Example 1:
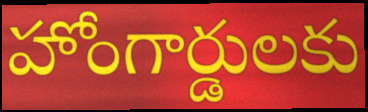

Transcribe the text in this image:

హోంగార్డులకు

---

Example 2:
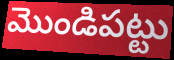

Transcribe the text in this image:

మొండిపట్టు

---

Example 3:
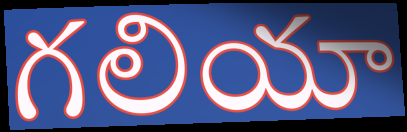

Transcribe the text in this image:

గలియా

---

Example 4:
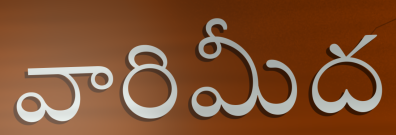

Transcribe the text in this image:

వారిమీద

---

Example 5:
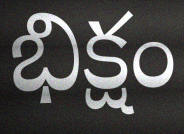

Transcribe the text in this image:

భిక్షం